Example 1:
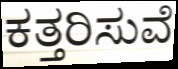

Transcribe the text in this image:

ಕತ್ತರಿಸುವೆ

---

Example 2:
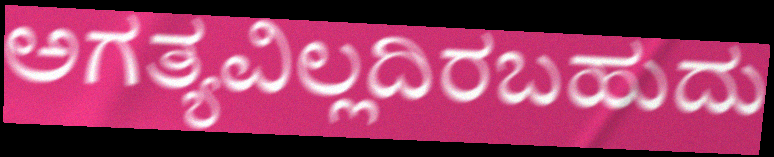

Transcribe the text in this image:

ಅಗತ್ಯವಿಲ್ಲದಿರಬಹುದು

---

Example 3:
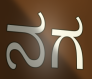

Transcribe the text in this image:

ನಗ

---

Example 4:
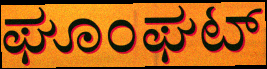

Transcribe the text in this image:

ಘೂಂಘಟ್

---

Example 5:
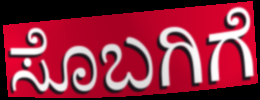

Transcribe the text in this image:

ಸೊಬಗಿಗೆ